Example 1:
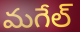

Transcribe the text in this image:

మగేల్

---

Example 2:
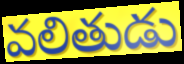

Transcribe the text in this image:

వలితుడు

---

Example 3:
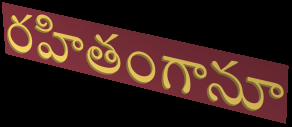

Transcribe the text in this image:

రహితంగానూ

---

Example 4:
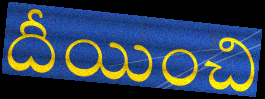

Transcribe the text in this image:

దీయించి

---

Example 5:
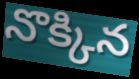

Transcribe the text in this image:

నొక్కిన